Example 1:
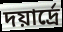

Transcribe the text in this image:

দয়ার্দ্রে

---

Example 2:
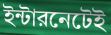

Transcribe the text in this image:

ইন্টারনেটেই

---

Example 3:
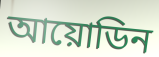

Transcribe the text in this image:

আয়োডিন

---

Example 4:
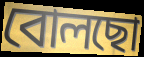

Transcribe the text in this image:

বোলছো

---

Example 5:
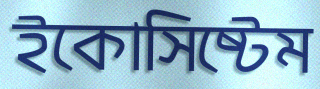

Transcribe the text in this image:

ইকোসিষ্টেম